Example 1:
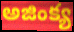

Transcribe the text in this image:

అజింక్య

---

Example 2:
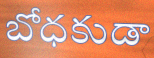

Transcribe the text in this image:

బోధకుడా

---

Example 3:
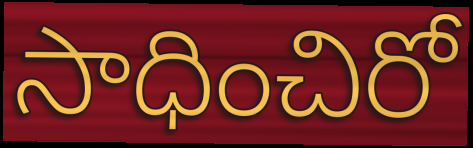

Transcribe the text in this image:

సాధించిరో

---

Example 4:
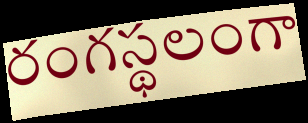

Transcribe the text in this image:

రంగస్థలంగా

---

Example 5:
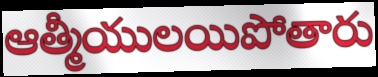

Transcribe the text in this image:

ఆత్మీయులయిపోతారు